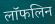
लॉफलिन